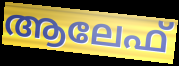
ആലേഫ്